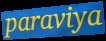
paraviya